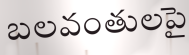
బలవంతులపై